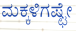
ಮಕ್ಕಳಿಗಷ್ಟೇ